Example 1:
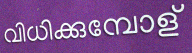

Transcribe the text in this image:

വിധിക്കുമ്പോള്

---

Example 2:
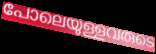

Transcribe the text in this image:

പോലെയുള്ളവരുടെ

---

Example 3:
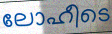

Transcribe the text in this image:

ലോഹീടെ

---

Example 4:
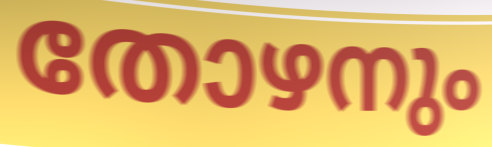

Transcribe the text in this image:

തോഴനും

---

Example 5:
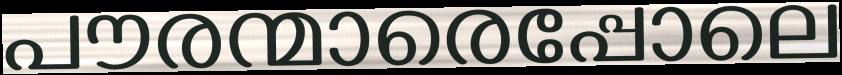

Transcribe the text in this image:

പൗരന്മാരെപ്പോലെ